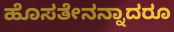
ಹೊಸತೇನನ್ನಾದರೂ